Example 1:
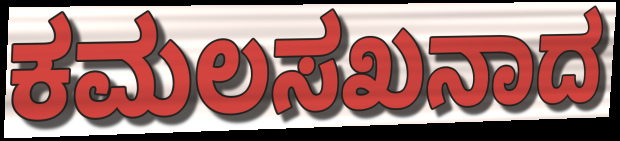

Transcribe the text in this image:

ಕಮಲಸಖನಾದ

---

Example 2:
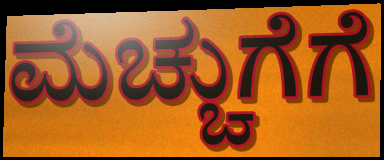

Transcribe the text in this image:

ಮೆಚ್ಚುಗೆಗೆ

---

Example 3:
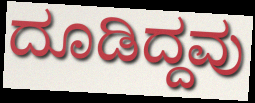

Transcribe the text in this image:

ದೂಡಿದ್ದವು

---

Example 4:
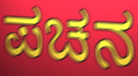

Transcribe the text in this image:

ಪಚನ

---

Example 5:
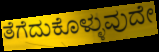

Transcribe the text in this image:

ತೆಗೆದುಕೊಳ್ಳುವುದೇ